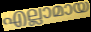
എല്ലാമായ